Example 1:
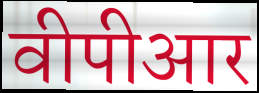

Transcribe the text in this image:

वीपीआर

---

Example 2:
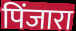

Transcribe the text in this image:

पिंजारा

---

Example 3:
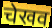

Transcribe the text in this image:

चेखव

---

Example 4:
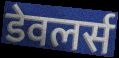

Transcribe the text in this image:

डेवलर्स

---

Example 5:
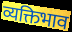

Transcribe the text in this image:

व्यक्तिभाव